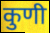
कुणी